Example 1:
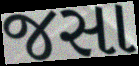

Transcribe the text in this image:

જસા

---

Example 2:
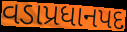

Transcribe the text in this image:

વડાપ્રધાનપદ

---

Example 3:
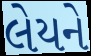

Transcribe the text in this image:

લેયને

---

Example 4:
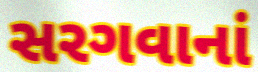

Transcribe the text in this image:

સરગવાનાં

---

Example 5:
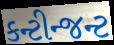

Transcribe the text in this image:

કન્ટીન્જન્ટ